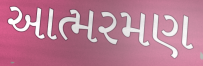
આત્મરમણ